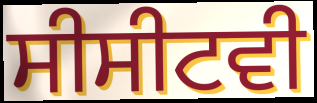
ਸੀਸੀਟਵੀ